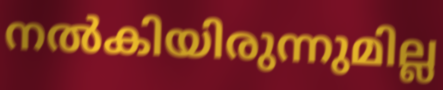
നൽകിയിരുന്നുമില്ല